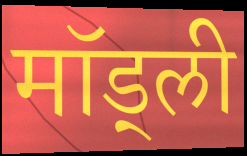
मॉड्ली